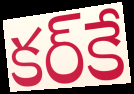
కర్‌కే